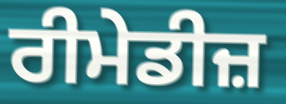
ਰੀਮੇਡੀਜ਼